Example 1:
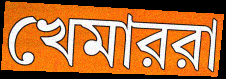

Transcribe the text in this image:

খেমাররা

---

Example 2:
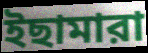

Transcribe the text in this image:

ইছামারা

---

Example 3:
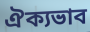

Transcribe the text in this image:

ঐক্যভাব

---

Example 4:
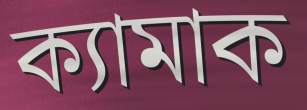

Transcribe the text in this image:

ক্যামাক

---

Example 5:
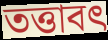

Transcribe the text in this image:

তত্তাবৎ